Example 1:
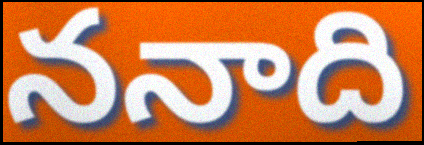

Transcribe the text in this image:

ననాది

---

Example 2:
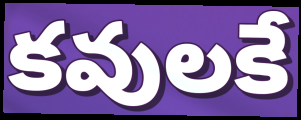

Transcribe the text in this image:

కవులకే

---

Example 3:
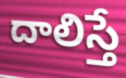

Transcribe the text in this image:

దాలిస్తే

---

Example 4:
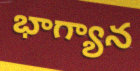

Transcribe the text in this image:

భాగ్యాన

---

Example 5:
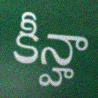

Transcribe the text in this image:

కీన్హా